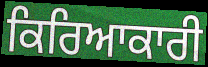
ਕਿਰਿਆਕਾਰੀ